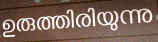
ഉരുത്തിരിയുന്നു